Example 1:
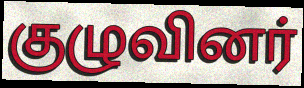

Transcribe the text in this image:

குழுவினர்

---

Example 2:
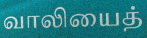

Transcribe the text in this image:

வாலியைத்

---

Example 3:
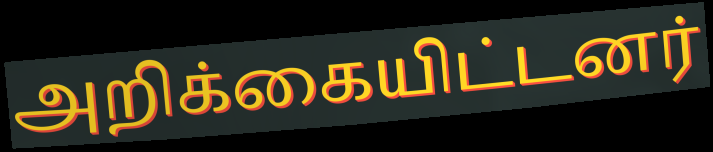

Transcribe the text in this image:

அறிக்கையிட்டனர்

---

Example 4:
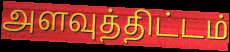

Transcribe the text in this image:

அளவுத்திட்டம்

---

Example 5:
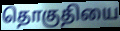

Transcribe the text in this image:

தொகுதியை